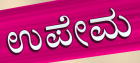
ಉಪೇಮ